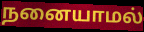
நனையாமல்